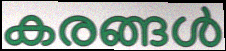
കരങ്ങൾ